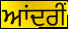
ਆਂਦਰੀਂ